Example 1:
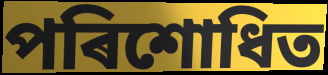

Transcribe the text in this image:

পৰিশোধিত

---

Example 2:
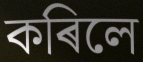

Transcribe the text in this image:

কৰিলে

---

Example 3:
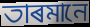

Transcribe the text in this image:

তাৰমানে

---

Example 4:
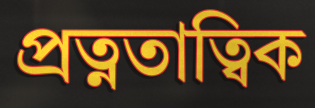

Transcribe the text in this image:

প্ৰত্নতাত্বিক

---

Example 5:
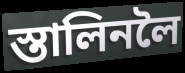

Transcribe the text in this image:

স্তালিনলৈ